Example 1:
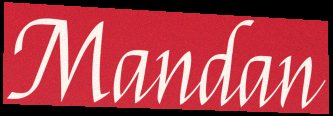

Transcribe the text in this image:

Mandan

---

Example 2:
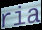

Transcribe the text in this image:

ria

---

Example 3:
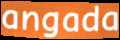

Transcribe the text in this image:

angada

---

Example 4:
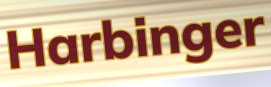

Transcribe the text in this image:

Harbinger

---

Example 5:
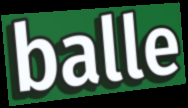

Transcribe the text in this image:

balle